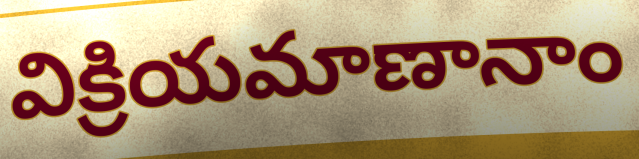
విక్రియమాణానాం